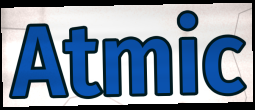
Atmic